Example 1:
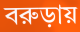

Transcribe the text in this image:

বরুড়ায়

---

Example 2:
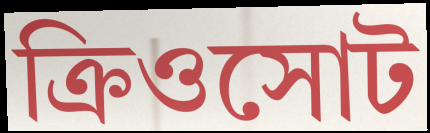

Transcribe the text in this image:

ক্রিওসোট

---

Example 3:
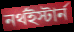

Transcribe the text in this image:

নর্থইস্টার্ন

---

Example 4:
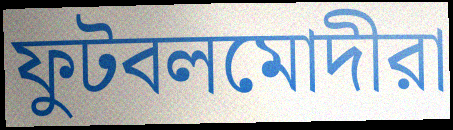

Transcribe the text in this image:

ফুটবলমোদীরা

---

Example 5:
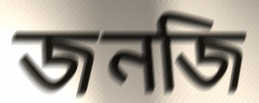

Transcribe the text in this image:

জনজি